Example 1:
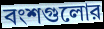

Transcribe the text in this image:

বংশগুলোর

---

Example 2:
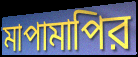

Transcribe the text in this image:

মাপামাপির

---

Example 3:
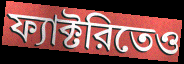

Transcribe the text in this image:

ফ্যাক্টরিতেও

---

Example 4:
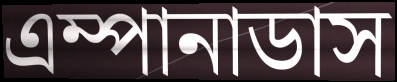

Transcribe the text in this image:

এম্পানাডাস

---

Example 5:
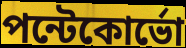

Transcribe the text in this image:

পন্টেকোর্ভো